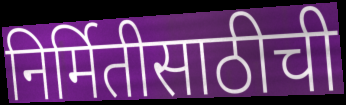
निर्मितीसाठीची